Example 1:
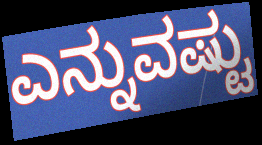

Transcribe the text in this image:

ಎನ್ನುವಷ್ಟು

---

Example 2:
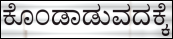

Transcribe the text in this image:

ಕೊಂಡಾಡುವದಕ್ಕೆ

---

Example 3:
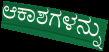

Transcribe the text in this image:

ಆಕಾಶಗಳನ್ನು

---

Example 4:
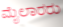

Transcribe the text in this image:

ಮೈಲಾರರು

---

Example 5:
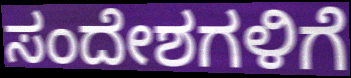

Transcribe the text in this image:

ಸಂದೇಶಗಳಿಗೆ